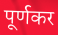
पूर्णकर